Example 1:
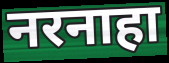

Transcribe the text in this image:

नरनाहा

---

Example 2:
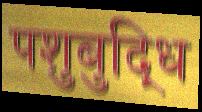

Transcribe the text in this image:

पशुबुद्धि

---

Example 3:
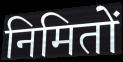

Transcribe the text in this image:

निमितों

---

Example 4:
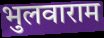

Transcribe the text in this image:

भुलवाराम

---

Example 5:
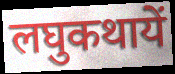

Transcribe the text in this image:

लघुकथायें